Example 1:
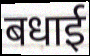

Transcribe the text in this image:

बधाई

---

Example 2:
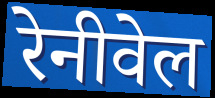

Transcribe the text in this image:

रेनीवेल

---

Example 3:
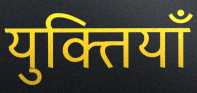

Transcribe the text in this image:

युक्तियाँ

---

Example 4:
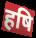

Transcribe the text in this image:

हषि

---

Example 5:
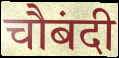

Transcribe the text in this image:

चौबंदी